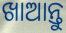
ଖାଆନ୍ତୁ